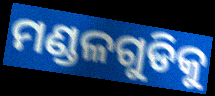
ମଣ୍ଡଳଗୁଡିକୁ